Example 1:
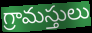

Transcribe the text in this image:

గ్రామస్తులు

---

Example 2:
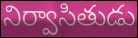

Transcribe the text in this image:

నిర్వాసితుడు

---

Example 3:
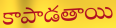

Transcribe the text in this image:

కాపాడతాయి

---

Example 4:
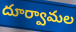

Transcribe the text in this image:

దూర్వామల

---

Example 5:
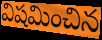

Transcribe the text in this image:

విషమించిన